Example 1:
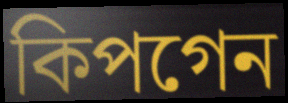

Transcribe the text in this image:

কিপগেন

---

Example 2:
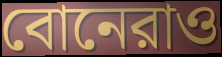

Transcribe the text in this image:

বোনেরাও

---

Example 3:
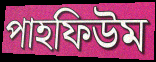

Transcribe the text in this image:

পাহফিউম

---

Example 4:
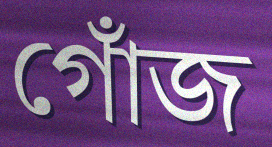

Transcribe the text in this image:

গোঁজ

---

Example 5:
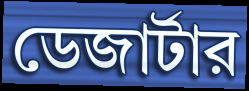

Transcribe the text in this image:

ডেজার্টার